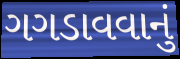
ગગડાવવાનું